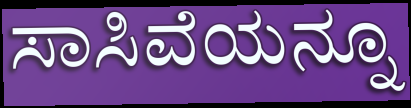
ಸಾಸಿವೆಯನ್ನೂ